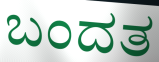
ಬಂದತ